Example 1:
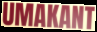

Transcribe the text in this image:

UMAKANT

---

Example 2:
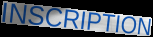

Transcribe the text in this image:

INSCRIPTION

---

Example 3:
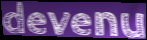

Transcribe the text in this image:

devenu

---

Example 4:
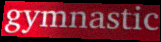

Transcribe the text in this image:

gymnastic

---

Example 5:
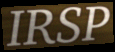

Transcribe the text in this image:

IRSP